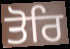
ਤੋਰਿ